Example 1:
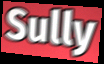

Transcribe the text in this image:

Sully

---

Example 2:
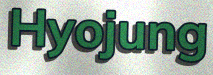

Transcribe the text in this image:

Hyojung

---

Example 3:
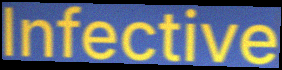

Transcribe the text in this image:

Infective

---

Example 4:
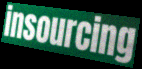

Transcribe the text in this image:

insourcing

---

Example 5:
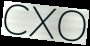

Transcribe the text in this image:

CXO